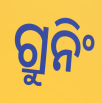
ଗ୍ରୁନିଂ